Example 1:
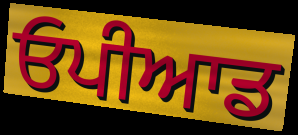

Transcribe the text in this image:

ਓਪੀਆਡ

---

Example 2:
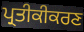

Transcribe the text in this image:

ਪ੍ਰਤੀਕੀਕਰਣ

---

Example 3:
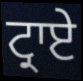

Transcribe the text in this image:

ਟ੍ਰਾਏ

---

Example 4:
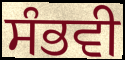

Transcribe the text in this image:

ਸੰਭਵੀ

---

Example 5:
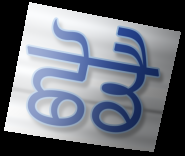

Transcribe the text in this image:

ਛੋਡੈ